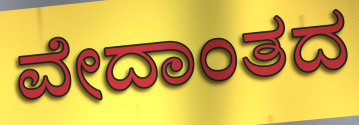
ವೇದಾಂತದ